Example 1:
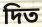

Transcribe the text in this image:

দিত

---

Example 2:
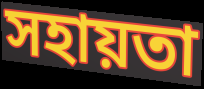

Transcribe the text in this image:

সহায়তা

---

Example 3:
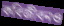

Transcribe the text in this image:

কবিজীবনও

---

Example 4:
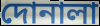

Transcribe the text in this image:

দোনালা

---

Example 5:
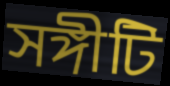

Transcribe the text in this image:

সঙ্গীটি